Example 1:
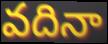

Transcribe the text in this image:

వదినా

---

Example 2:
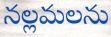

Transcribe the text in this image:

నల్లమలను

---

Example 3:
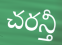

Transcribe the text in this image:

చరన్తీ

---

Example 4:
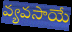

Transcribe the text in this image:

వ్యవసాయే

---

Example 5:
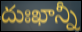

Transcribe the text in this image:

దుఃఖాన్నీ